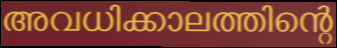
അവധിക്കാലത്തിന്റെ